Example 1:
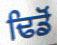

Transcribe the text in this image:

ਢਿਡੋਂ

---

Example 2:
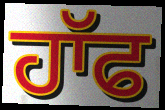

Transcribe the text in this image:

ਹਾੱਫ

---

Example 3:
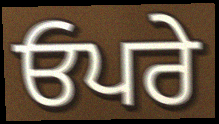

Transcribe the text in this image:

ਓਪਰੇ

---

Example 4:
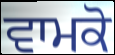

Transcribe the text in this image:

ਵਾਮਕੋ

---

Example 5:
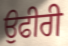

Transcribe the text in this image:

ਉਫੀਰੀ